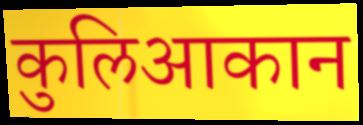
कुलिआकान